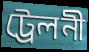
ট্রেলনী